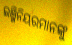
ଇଞ୍ଜିନିୟରମାନଙ୍କୁ